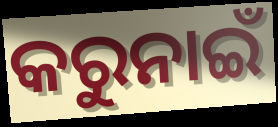
କରୁନାଇଁ